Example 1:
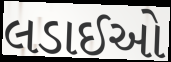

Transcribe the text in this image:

લડાઈઓ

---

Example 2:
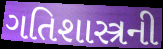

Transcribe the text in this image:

ગતિશાસ્ત્રની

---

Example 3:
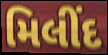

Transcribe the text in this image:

મિલીંદ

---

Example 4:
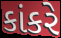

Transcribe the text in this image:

કાંકરે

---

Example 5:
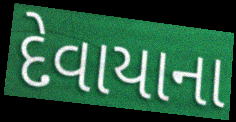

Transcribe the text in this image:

દેવાયાના